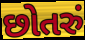
છોતરું